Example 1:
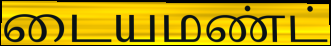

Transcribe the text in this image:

டையமண்ட்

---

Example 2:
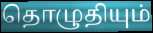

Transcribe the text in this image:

தொழுதியும்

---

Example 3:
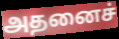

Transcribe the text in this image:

அதனைச்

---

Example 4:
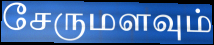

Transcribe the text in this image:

சேருமளவும்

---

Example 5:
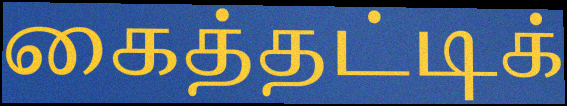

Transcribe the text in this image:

கைத்தட்டிக்